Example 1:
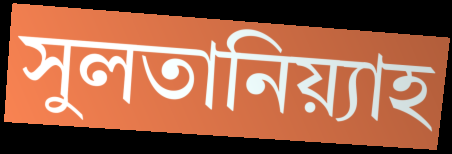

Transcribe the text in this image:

সুলতানিয়্যাহ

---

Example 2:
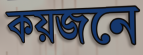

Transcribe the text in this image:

কয়জনে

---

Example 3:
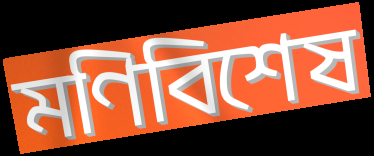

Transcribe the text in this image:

মণিবিশেষ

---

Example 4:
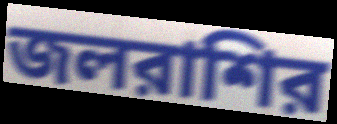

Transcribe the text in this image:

জলরাশির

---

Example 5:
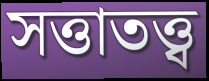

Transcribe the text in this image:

সত্তাতত্ত্ব